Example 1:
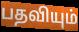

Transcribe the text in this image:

பதவியும்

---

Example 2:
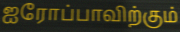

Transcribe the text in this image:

ஐரோப்பாவிற்கும்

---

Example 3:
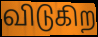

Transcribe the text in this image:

விடுகிற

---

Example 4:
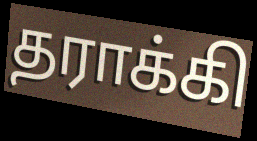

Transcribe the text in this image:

தராக்கி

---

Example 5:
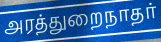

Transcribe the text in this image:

அரத்துறைநாதர்